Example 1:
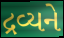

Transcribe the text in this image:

દ્રવ્યને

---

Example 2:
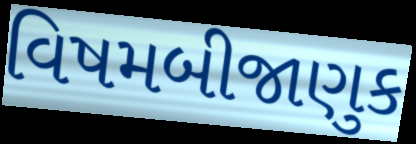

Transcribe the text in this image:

વિષમબીજાણુક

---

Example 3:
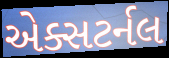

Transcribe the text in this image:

એક્સટર્નલ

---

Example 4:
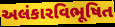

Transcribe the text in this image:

અલંકારવિભૂષિત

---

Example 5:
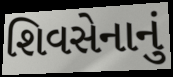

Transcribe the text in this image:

શિવસેનાનું